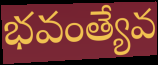
భవంత్యేవ